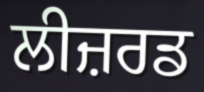
ਲੀਜ਼ਰਡ